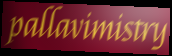
pallavimistry